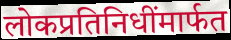
लोकप्रतिनिधींमार्फत